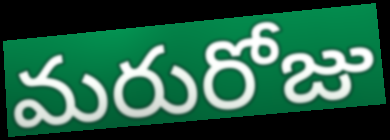
మరురోజు